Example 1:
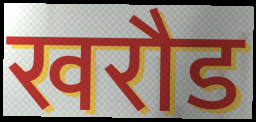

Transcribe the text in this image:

खरौड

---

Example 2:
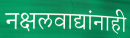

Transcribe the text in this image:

नक्षलवाद्यांनाही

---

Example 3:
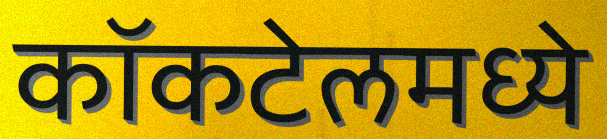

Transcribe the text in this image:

कॉकटेलमध्ये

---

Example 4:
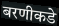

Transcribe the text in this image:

बरणीकडे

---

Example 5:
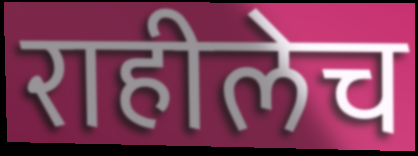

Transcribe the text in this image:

राहीलेच